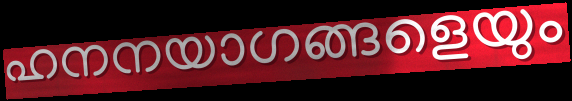
ഹനനയാഗങ്ങളെയും